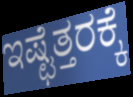
ಇಷ್ಟೆತ್ತರಕ್ಕೆ